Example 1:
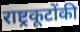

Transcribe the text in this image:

राष्ट्रकूटोंकी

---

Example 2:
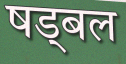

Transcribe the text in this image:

षड्बल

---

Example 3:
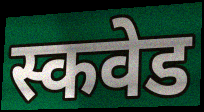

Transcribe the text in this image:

स्कवेड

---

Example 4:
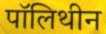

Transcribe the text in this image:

पॉलिथीन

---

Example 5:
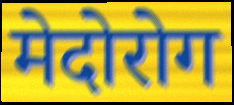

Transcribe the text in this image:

मेदोरोग